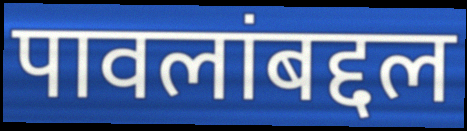
पावलांबद्दल